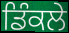
ਡਿੰਕਲੇ